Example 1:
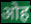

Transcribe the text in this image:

ओह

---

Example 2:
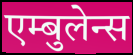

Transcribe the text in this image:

एम्बुलेन्स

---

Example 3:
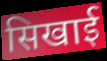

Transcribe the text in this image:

सिखाई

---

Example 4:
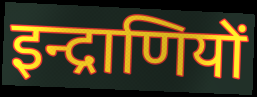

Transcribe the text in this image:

इन्द्राणियों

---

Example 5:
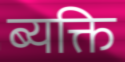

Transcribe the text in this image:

ब्यक्ति